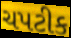
ચપટીક